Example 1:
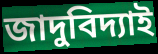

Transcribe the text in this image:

জাদুবিদ্যাই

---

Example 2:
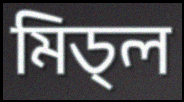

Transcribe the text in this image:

মিড্‌ল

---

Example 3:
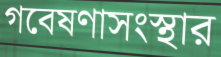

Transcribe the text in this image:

গবেষণাসংস্থার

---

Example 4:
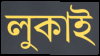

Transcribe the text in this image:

লুকাই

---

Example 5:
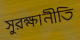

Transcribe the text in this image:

সুরক্ষানীতি